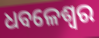
ଧବଳେଶ୍ଵର